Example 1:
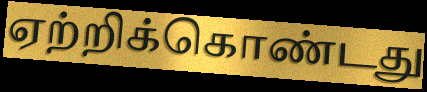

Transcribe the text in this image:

ஏற்றிக்கொண்டது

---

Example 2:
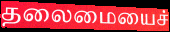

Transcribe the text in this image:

தலைமையைச்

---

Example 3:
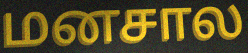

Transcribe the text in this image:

மனசால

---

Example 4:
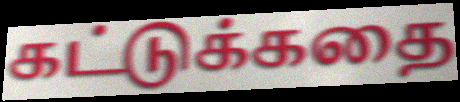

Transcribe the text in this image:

கட்டுக்கதை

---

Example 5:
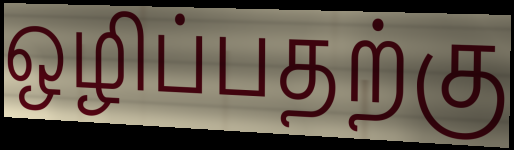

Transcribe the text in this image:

ஒழிப்பதற்கு